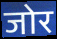
जोर